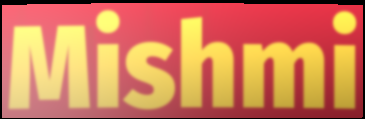
Mishmi